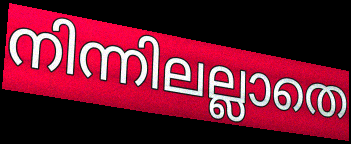
നിന്നിലല്ലാതെ